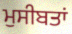
ਮੁਸੀਬਤਾਂ